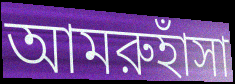
আমরুহাঁসা